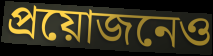
প্রয়োজনেও